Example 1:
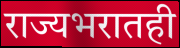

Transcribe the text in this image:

राज्यभरातही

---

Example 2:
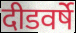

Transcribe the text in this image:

दीडवर्षे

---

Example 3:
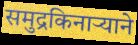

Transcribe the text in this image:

समुद्रकिनाऱ्याने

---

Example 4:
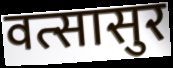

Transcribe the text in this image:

वत्सासुर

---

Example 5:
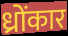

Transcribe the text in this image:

ध्रोंकार